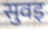
सुवइ